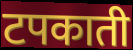
टपकाती